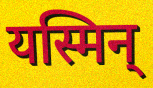
यस्मिन्